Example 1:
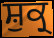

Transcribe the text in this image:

ਸ਼ੁਕ੍ਰ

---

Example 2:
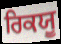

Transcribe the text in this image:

ਰਿਕਯੂ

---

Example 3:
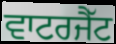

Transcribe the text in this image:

ਵਾਟਰਜੈੱਟ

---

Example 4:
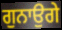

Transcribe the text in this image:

ਗੁਨਾਉਗੇ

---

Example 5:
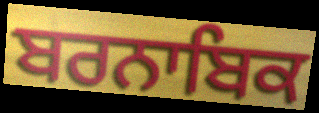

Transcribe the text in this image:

ਬਰਨਾਬਿਕ